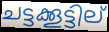
ചട്ടക്കൂട്ടില്